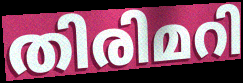
തിരിമറി